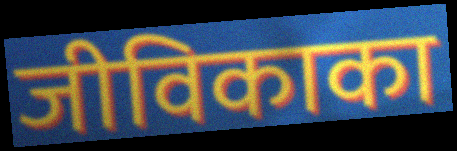
जीविकाका